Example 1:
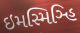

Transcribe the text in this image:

ઇમસ્મિઞ્હિ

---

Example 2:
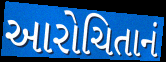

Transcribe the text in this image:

આરોચિતાનં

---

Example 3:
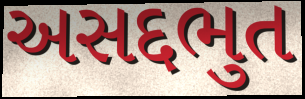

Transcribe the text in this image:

અસદ્દભુત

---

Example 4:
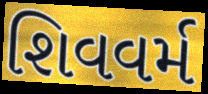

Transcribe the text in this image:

શિવવર્મ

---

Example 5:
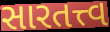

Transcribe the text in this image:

સારતત્ત્વ